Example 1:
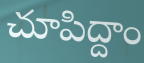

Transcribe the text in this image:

చూపిద్దాం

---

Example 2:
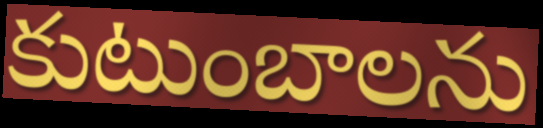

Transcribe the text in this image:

కుటుంబాలను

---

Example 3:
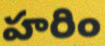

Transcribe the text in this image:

హరిం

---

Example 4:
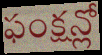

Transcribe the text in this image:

ఫంక్షన్లో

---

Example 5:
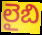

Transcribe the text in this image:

లైబి